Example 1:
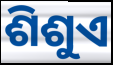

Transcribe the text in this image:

ଶିଶୁଏ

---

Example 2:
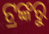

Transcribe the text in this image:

ଟ୍ରଙ୍କରୁ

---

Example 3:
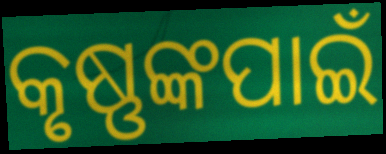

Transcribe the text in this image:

କୃଷ୍ଣଙ୍କପାଇଁ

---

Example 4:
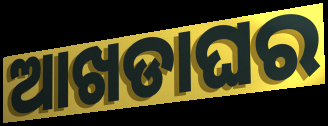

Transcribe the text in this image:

ଆଖଡାଘର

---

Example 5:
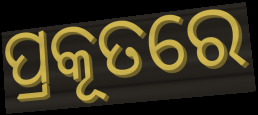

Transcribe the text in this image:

ପ୍ରକୂତରେ